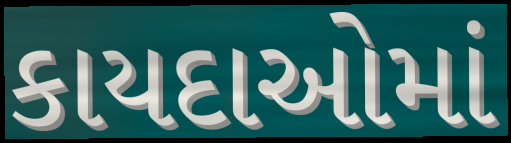
કાયદાઓમાં